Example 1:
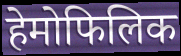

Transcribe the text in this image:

हेमोफिलिक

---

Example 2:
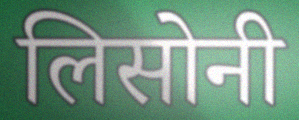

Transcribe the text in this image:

लिसोनी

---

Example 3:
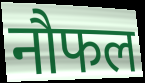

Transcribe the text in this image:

नौफल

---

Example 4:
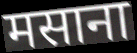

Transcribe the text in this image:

मसाना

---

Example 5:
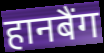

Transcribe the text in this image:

हानबैंग